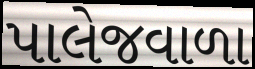
પાલેજવાળા